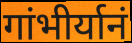
गांभीर्यानं